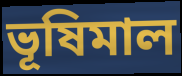
ভূষিমাল